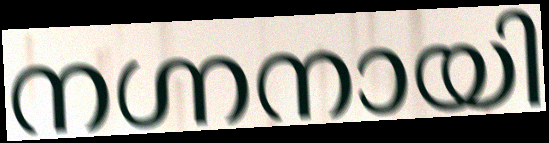
നഗ്നനായി